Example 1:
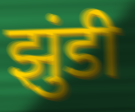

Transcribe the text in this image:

झुंडी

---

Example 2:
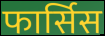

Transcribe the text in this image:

फार्सिस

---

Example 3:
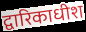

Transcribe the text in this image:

द्वारिकाधीश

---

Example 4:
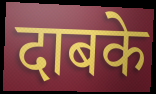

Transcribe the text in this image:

दाबके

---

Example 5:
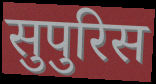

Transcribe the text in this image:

सुपुरिस